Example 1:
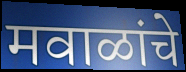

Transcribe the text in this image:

मवाळांचे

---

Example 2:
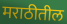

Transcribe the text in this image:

मराठीतील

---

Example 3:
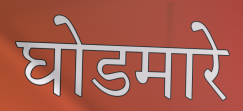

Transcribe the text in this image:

घोडमारे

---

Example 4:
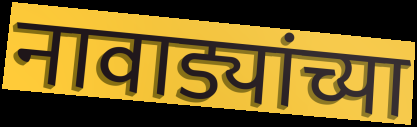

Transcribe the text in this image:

नावाड्यांच्या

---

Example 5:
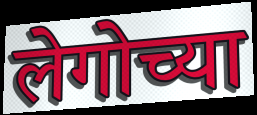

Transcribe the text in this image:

लेगोच्या